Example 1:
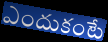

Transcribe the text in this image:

ఎందుకంటే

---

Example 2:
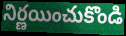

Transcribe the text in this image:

నిర్ణయించుకొండి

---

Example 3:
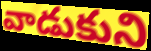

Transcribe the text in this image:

వాడుకుని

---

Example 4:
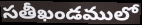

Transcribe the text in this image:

సతీఖండములో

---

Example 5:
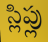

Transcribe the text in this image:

స్లిప్లు